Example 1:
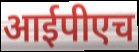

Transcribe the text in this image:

आईपीएच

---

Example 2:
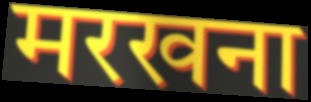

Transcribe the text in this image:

मरखना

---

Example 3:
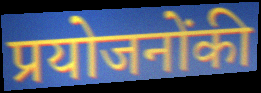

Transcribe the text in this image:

प्रयोजनोंकी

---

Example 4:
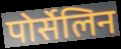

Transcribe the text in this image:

पोर्सेलिन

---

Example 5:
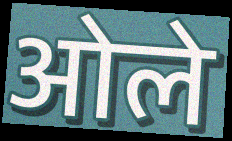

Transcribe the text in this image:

ओले